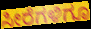
ಸೀರೆಗಳಿಗೂ